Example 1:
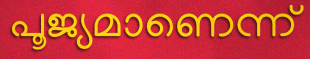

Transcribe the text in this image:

പൂജ്യമാണെന്ന്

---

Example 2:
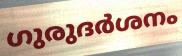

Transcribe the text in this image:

ഗുരുദർശനം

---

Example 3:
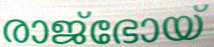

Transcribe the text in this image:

രാജ്ഭോയ്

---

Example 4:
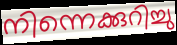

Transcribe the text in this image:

നിന്നെക്കുറിച്ചു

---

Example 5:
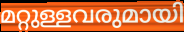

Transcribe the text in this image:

മറ്റുള്ളവരുമായി